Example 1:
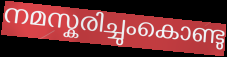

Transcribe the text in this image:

നമസ്കരിച്ചുംകൊണ്ടു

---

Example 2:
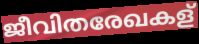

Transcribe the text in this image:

ജീവിതരേഖകള്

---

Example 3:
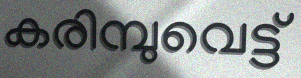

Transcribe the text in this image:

കരിമ്പുവെട്ട്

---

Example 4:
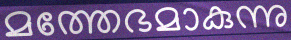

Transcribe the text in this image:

മത്തേഭമാകുന്നു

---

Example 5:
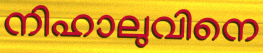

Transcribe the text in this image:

നിഹാലുവിനെ